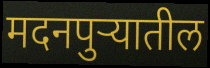
मदनपुऱ्यातील